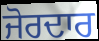
ਜੋਰਦਾਰ